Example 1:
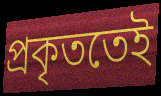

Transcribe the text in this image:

প্ৰকৃততেই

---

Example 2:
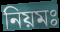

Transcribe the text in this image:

নিয়মঃ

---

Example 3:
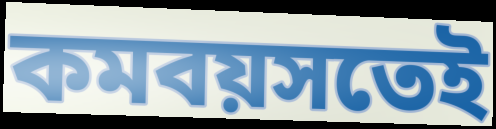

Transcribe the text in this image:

কমবয়সতেই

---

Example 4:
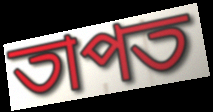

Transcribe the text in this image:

তাপত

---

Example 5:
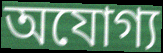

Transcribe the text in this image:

অযোগ্য